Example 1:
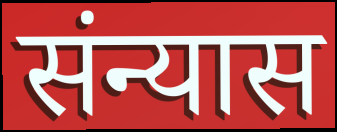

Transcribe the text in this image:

संन्यास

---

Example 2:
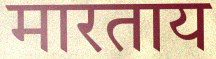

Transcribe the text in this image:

मारताय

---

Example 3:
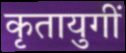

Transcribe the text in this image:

कृतायुगीं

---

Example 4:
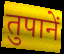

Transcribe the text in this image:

तुपानें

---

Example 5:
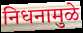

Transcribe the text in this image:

निधनामुळे